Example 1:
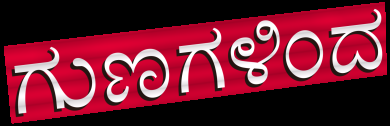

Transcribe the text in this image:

ಗುಣಗಳಿಂದ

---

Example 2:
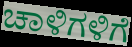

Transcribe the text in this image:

ಚಾಳಿಗಳಿಗೆ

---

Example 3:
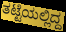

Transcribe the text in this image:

ತಟ್ಟೆಯಲ್ಲಿದ್ದ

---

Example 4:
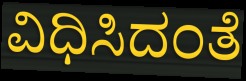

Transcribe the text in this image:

ವಿಧಿಸಿದಂತೆ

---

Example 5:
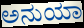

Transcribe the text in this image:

ಅನುಯಾ